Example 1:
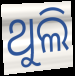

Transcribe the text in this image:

ଥୁଲି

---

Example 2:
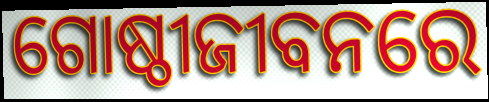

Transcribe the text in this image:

ଗୋଷ୍ଠୀଜୀବନରେ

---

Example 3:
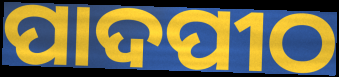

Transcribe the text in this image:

ପାଦପୀଠ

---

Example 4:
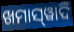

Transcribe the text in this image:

ଖମାସ୍‌ୱାଦି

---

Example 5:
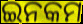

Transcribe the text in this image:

ଇନକମ